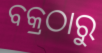
ବକ୍ରଠାରୁ